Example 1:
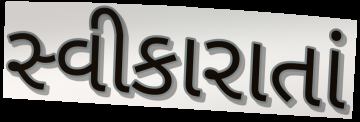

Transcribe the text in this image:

સ્વીકારાતાં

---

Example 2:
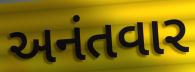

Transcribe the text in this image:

અનંતવાર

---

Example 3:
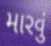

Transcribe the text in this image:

મારવું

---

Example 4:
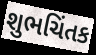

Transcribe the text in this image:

શુભચિંતક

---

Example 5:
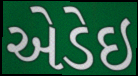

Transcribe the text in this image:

એડેઇ